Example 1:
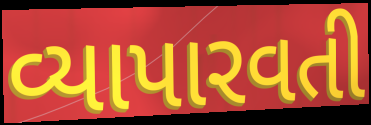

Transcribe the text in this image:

વ્યાપારવતી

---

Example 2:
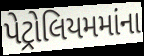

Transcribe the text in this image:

પેટ્રોલિયમમાંના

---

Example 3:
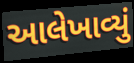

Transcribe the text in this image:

આલેખાવ્યું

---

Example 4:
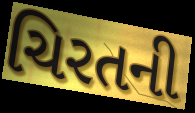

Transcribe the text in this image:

ચિરતની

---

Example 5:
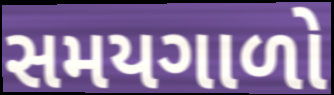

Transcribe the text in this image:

સમયગાળો